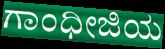
ಗಾಂಧೀಜಿಯ